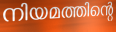
നിയമത്തിന്റെ